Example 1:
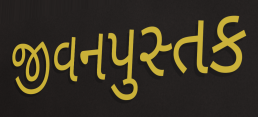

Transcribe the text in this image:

જીવનપુસ્તક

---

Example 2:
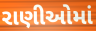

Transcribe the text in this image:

રાણીઓમાં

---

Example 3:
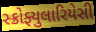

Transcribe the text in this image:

સ્ક્રોફ્યુલારિયેસી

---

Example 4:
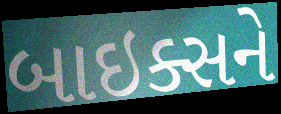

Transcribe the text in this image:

બાઇક્સને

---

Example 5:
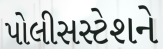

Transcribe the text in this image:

પોલીસસ્ટેશને